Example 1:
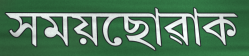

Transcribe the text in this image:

সময়ছোৱাক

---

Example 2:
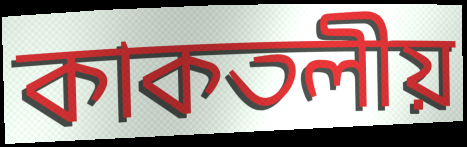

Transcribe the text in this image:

কাকতলীয়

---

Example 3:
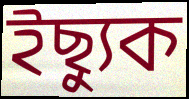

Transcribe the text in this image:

ইছ্যুক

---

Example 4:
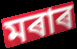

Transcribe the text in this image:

মৰাৰ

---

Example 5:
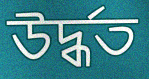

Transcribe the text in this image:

উৰ্দ্ধত